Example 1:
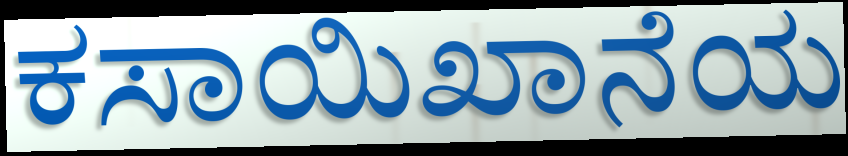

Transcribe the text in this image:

ಕಸಾಯಿಖಾನೆಯ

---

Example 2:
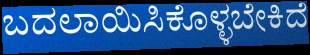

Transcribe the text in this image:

ಬದಲಾಯಿಸಿಕೊಳ್ಳಬೇಕಿದೆ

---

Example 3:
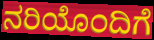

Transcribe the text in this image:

ನರಿಯೊಂದಿಗೆ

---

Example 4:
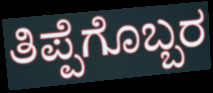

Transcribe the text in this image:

ತಿಪ್ಪೆಗೊಬ್ಬರ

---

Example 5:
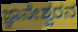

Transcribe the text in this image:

ಜ್ಞಾನೇಶ್ವರನ